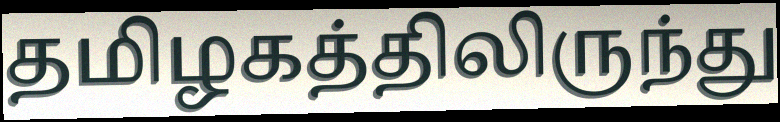
தமிழகத்திலிருந்து